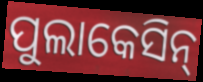
ପୁଲାକେସିନ୍